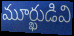
మూర్ఖుడివి